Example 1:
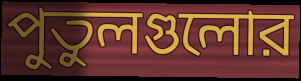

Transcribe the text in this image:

পুতুলগুলোর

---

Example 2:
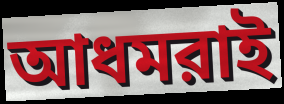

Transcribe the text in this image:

আধমরাই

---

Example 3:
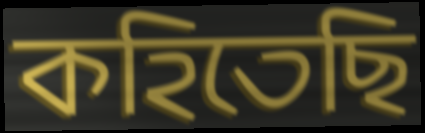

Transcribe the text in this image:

কহিতেছি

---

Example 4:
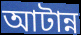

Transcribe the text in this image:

আটান্ন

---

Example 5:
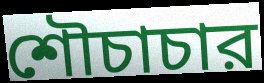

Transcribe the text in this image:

শৌচাচার